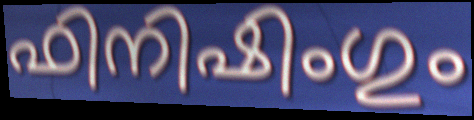
ഫിനിഷിംഗും